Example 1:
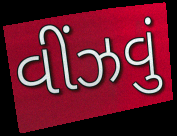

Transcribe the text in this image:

વીંઝવું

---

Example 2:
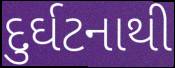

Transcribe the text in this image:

દુર્ઘટનાથી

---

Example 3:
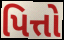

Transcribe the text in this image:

પિત્તો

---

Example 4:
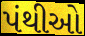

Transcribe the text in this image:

પંથીઓ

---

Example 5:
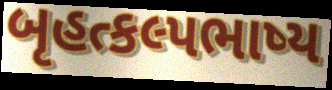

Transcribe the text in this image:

બૃહત્કલ્પભાષ્ય